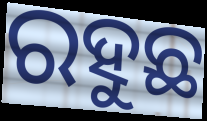
ରହୁଛ